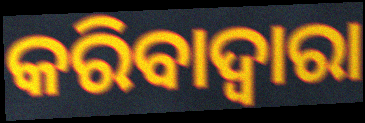
କରିବାଦ୍ବାରା